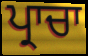
ਪ੍ਰਾਚਾ